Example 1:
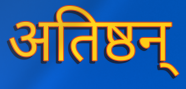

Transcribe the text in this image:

अतिष्ठन्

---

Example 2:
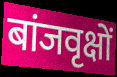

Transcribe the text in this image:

बांजवृक्षों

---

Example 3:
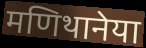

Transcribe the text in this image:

मणिथानेया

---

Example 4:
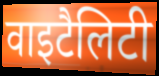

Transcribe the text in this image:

वाइटैलिटी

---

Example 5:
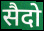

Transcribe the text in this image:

सैदो